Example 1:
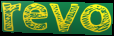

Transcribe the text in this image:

revo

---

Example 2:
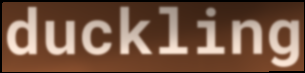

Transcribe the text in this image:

duckling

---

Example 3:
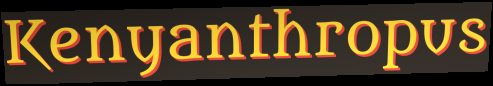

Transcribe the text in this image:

Kenyanthropus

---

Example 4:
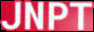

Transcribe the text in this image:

JNPT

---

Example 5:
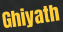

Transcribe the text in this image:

Ghiyath